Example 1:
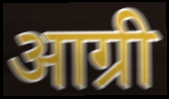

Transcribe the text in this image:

आग्री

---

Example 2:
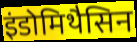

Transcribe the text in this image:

इंडोमिथैसिन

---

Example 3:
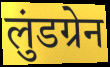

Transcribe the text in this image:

लुंडग्रेन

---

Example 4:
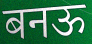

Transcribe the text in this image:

बनऊ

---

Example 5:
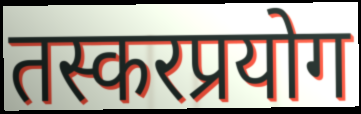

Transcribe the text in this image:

तस्करप्रयोग